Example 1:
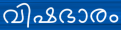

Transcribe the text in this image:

വിഷഭാരം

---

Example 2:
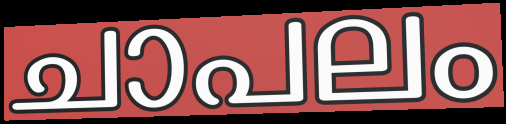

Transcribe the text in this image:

ചാപലം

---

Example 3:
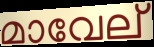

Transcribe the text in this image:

മാവേല്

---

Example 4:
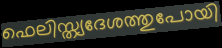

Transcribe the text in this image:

ഫെലിസ്ത്യദേശത്തുപോയി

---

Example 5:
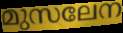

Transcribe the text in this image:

മുസലേന